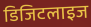
डिजिटलाइज